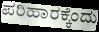
ಪರಿಹಾರಕ್ಕೆಂದು